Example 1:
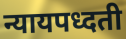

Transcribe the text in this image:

न्यायपध्दती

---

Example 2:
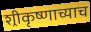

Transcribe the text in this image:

श्रीकृष्णाच्याच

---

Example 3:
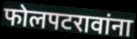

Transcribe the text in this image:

फोलपटरावांना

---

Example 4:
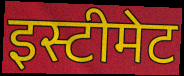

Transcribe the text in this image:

इस्टीमेट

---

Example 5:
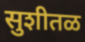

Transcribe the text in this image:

सुशीतळ